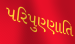
પરિપુણ્ણાતિ